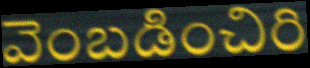
వెంబడించిరి